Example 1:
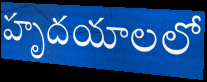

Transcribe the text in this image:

హృదయాలలో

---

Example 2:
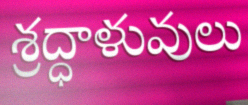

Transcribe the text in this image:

శ్రద్ధాళువులు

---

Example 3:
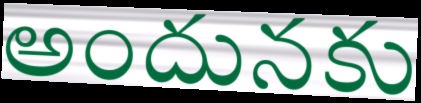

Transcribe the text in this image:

అందునకు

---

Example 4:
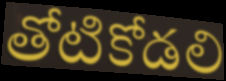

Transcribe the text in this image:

తోటికోడలి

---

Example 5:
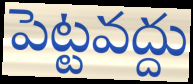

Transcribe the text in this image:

పెట్టవద్దు